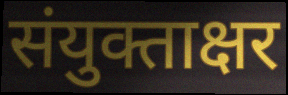
संयुक्ताक्षर